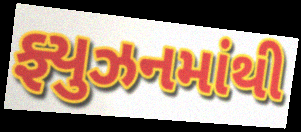
ફ્યુઝનમાંથી